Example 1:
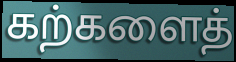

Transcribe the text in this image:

கற்களைத்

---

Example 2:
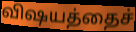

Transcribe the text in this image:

விஷயத்தைச்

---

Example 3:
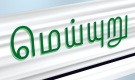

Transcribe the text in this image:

மெய்யுறு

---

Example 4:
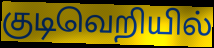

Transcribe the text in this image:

குடிவெறியில்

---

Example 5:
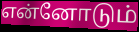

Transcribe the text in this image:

என்னோடும்